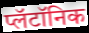
प्लॅटॉनिक